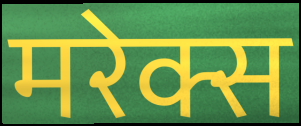
मरेक्स